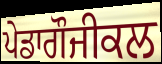
ਪੇਡਾਗੌਜੀਕਲ